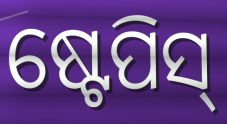
ଷ୍ଟେପିସ୍